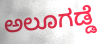
ಅಲೂಗಡ್ಡೆ